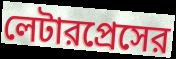
লেটারপ্রেসের